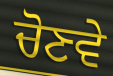
ਚੋਣਵੇ